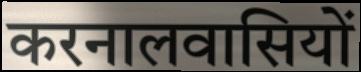
करनालवासियों